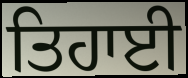
ਤਿਹਾਈ